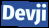
Devji